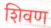
शिवण